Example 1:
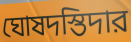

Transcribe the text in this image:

ঘোষদস্তিদার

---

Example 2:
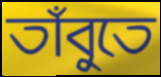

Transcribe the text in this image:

তাঁবুতে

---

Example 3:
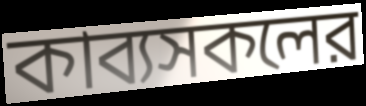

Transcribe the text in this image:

কাব্যসকলের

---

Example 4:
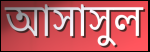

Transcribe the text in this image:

আসাসুল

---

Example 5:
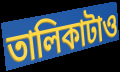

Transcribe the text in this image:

তালিকাটাও